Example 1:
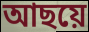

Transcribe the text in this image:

আছয়ে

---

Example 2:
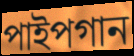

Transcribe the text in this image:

পাইপগান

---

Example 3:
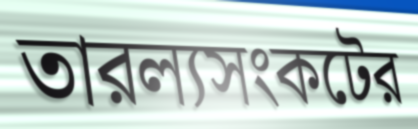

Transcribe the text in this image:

তারল্যসংকটের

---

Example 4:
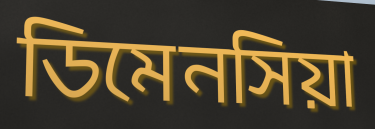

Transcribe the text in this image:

ডিমেনসিয়া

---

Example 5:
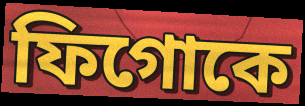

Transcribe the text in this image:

ফিগোকে